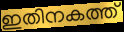
ഇതിനകത്ത്